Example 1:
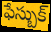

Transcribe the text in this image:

ఫేస్బుక్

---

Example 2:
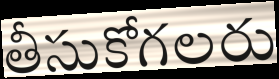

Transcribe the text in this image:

తీసుకోగలరు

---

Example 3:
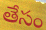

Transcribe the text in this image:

తేసం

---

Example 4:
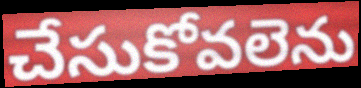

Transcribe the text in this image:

చేసుకోవలెను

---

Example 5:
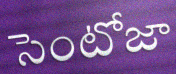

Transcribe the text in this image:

సెంటోజా